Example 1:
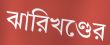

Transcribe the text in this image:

ঝারিখণ্ডের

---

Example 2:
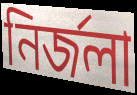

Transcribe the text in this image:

নির্জলা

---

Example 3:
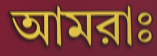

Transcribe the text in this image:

আমরাঃ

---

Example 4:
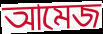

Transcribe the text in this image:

আমেজ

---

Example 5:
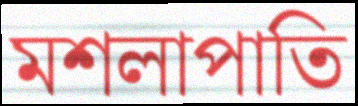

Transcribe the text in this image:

মশলাপাতি